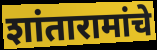
शांतारामांचे